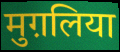
मुग़लिया